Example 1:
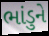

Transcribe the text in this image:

ભાંડુને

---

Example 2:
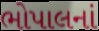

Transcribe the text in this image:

ભોપાલનાં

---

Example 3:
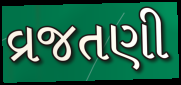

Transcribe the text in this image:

વ્રજતણી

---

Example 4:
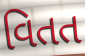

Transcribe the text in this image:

વિતત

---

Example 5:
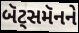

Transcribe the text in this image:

બૅટ્સમૅનને